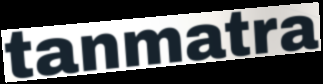
tanmatra